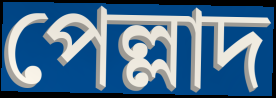
পেল্লাদ